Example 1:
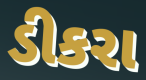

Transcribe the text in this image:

ડીકરા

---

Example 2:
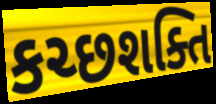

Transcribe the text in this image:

કચ્છશક્તિ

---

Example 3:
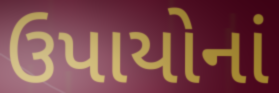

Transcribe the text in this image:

ઉપાયોનાં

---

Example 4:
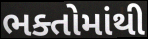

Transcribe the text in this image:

ભક્તોમાંથી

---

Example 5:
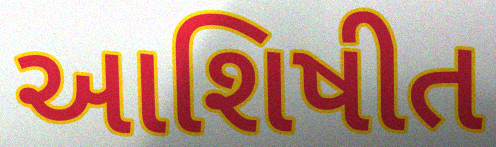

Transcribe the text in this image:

આશિષીત